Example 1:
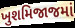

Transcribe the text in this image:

ખુશમિજાજમાં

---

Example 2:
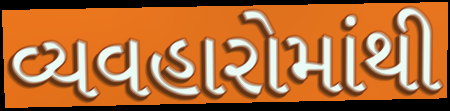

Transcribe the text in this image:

વ્યવહારોમાંથી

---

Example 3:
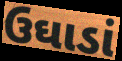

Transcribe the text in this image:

ઉઘાડાં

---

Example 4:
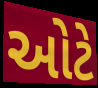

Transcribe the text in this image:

ઓટે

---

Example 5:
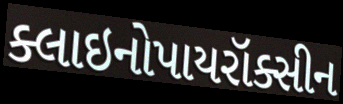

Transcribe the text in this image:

ક્લાઇનોપાયરૉક્સીન